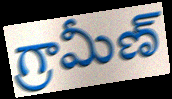
గ్రామీణ్